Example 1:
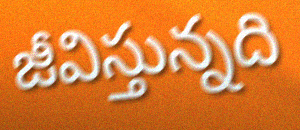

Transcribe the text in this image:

జీవిస్తున్నది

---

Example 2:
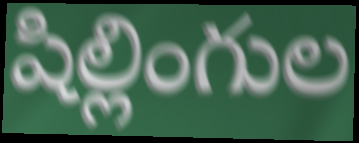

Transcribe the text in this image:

షిల్లింగుల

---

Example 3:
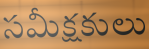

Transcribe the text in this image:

సమీక్షకులు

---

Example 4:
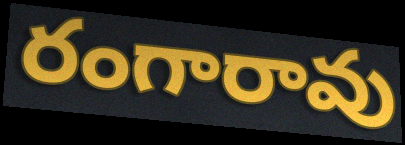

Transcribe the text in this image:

రంగారావు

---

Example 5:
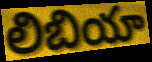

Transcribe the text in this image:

లిబియా